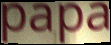
papa